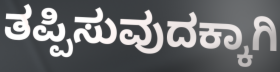
ತಪ್ಪಿಸುವುದಕ್ಕಾಗಿ